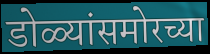
डोळ्यांसमोरच्या